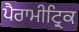
ਪੈਰਾਮੀਟ੍ਰਿਕ